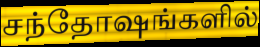
சந்தோஷங்களில்